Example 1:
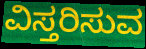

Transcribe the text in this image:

ವಿಸ್ತರಿಸುವ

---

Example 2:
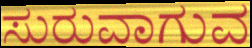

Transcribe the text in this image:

ಸುರುವಾಗುವ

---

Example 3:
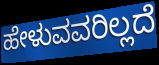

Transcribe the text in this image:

ಹೇಳುವವರಿಲ್ಲದೆ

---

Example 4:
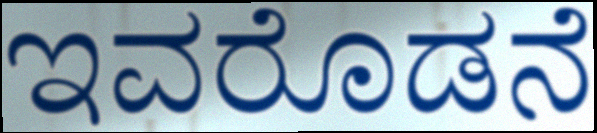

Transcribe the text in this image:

ಇವರೊಡನೆ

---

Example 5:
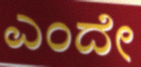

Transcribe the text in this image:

ಎಂದೇ